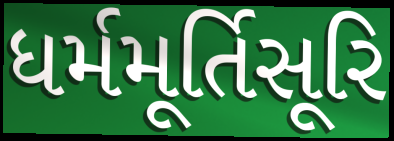
ધર્મમૂર્તિસૂરિ